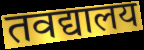
तवद्यालय